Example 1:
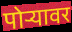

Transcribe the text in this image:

पोर्‍यावर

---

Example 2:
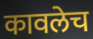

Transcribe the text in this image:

कावलेच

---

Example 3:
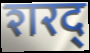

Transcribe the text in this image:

शरद्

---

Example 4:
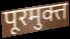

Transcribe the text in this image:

पूरमुक्त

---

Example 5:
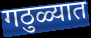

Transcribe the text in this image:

गठुळ्यात